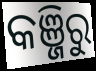
କଞ୍ଜିରୁ